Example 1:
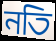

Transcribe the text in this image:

নতি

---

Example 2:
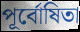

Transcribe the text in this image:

পূর্বোষিতা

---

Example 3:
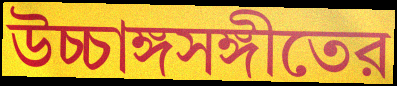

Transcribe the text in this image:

উচ্চাঙ্গসঙ্গীতের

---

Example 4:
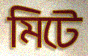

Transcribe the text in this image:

মিটে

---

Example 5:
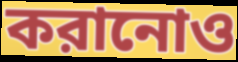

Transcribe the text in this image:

করানোও